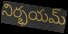
నిర్భయమ్